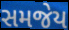
સમજેય